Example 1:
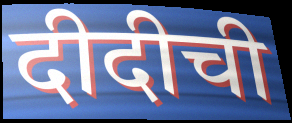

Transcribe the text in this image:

दीदीची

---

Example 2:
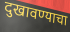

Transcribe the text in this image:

दुखावण्याचा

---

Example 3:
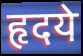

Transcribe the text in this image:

हृदये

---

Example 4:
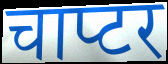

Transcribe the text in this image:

चाप्टर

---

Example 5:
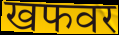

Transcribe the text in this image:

खफवर